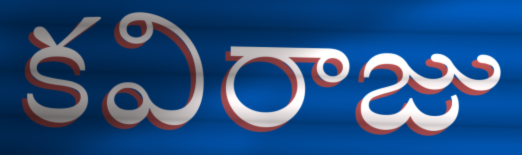
కవిరాజు